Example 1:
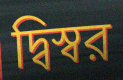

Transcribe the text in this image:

দ্বিস্বর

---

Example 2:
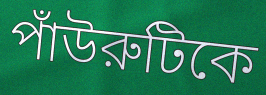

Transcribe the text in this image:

পাঁউরুটিকে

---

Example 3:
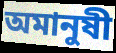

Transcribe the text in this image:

অমানুষী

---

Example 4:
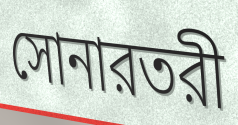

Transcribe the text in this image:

সোনারতরী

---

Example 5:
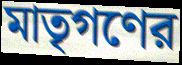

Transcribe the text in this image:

মাতৃগণের